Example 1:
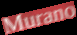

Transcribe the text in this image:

Murano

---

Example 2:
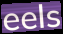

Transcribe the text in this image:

eels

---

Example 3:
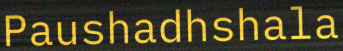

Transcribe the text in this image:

Paushadhshala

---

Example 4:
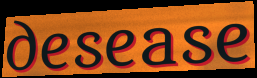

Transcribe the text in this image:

desease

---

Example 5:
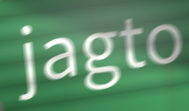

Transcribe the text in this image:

jagto